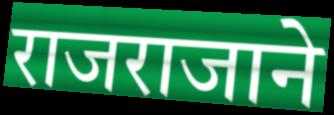
राजराजाने